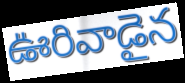
ఊరివాడైన